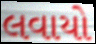
લવાયો